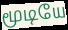
மூடியே